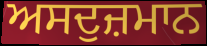
ਅਸਦੁਜ਼ਮਾਨ